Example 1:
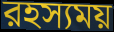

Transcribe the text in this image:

রহস্যময়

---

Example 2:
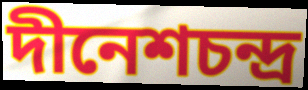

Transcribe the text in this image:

দীনেশচন্দ্র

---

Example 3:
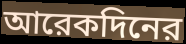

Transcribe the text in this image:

আরেকদিনের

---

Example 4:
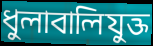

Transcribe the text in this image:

ধুলাবালিযুক্ত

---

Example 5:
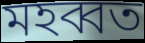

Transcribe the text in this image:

মহব্বত